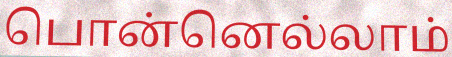
பொன்னெல்லாம்